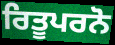
ਰਿਤੂਪਰਨੋ